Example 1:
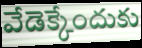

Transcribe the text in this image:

వేడెక్కేందుకు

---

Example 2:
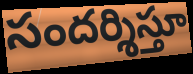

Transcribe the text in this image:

సందర్శిస్తూ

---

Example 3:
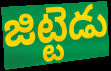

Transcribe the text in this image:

జిట్టెడు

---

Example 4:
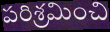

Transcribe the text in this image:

పరిశ్రమించి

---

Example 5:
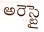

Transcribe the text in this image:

అరెస్టై